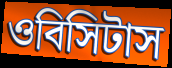
ওবিসিটাস